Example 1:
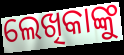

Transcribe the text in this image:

ଲେଖିକାଙ୍କୁ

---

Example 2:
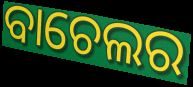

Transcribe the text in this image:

ବାଚେଲର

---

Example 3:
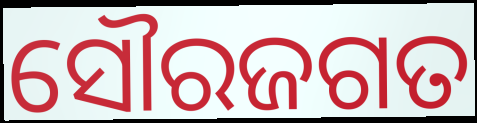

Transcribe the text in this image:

ସୌରଜଗତ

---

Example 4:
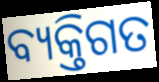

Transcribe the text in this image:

ବ୍ୟକ୍ତିଗତ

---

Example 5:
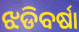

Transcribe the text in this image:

ଝଡିବର୍ଷା